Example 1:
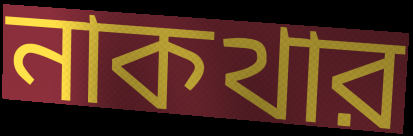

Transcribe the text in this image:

নাকথার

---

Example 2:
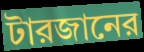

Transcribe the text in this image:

টারজানের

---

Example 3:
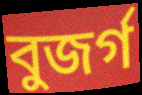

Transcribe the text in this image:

বুজর্গ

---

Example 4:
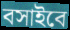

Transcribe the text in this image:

বসাইবে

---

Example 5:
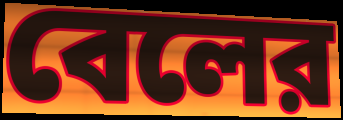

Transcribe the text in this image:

বেলের